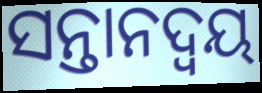
ସନ୍ତାନଦ୍ୱୟ